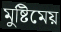
মুষ্টিমেয়